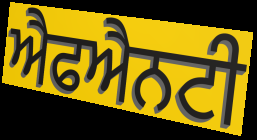
ਐਫਐਨਟੀ